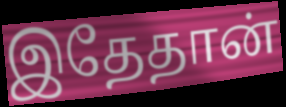
இதேதான்